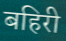
बहिरी